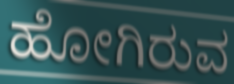
ಹೋಗಿರುವ